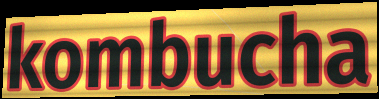
kombucha